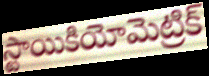
స్టాయికియోమెట్రిక్